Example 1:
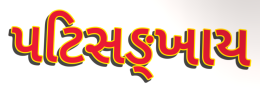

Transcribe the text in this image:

પટિસઙ્ખાય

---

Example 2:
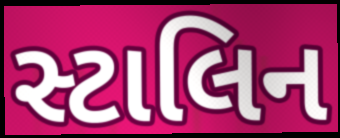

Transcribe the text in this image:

સ્ટાલિન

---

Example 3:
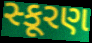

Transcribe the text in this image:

સ્કૂરણ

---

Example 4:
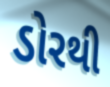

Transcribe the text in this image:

ડોરથી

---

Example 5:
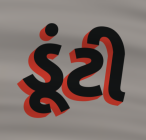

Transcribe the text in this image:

ડૂંટી